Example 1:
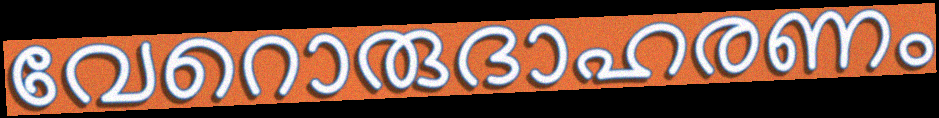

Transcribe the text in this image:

വേറൊരുദാഹരണം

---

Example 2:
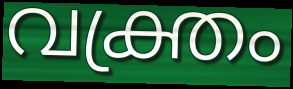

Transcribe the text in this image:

വക്ത്രം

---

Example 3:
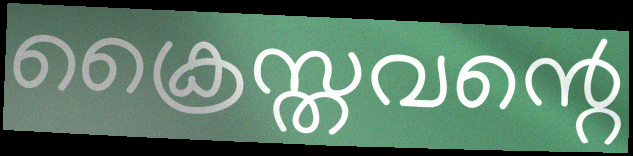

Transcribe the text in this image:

ക്രൈസ്തവന്റെ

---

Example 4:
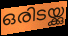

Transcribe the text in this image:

ഒരിടയ്ക്കു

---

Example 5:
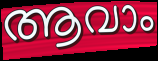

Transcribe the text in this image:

ആവാം